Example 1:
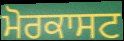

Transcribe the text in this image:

ਮੋਰਕਾਸਟ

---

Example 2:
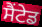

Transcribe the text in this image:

ਸੈਂਟੇਡ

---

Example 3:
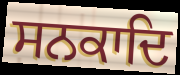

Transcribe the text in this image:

ਸਨਕਾਦਿ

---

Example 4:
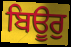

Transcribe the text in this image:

ਬਿਊਰੁ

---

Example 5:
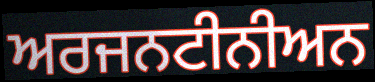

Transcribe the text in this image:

ਅਰਜਨਟੀਨੀਅਨ